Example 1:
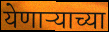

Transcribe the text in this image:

येणाऱ्याच्या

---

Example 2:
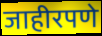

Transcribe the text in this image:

जाहीरपणे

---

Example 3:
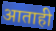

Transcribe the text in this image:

आताही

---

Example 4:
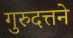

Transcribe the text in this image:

गुरुदत्तने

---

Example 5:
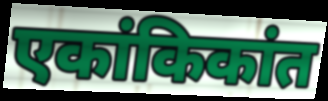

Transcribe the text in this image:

एकांकिकांत